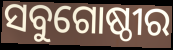
ସବୁଗୋଷ୍ଠୀର